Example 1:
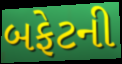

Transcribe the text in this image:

બફેટની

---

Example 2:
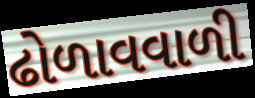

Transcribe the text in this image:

ઢોળાવવાળી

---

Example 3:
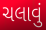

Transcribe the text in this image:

ચલાવું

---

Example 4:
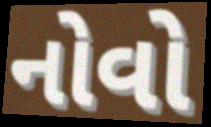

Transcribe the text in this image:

નોવો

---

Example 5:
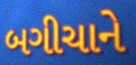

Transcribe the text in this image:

બગીચાને